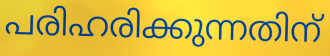
പരിഹരിക്കുന്നതിന്